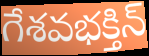
గేశవభక్తిన్